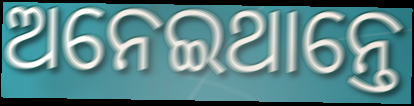
ଅନେଇଥାନ୍ତେ